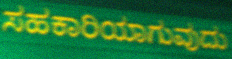
ಸಹಕಾರಿಯಾಗುವುದು